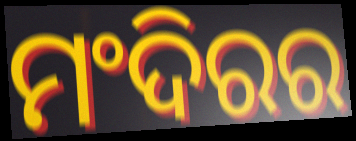
ମଂଦିରର